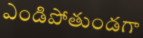
ఎండిపోతుండగా